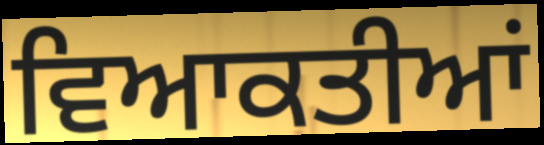
ਵਿਆਕਤੀਆਂ